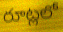
రూట్లలో